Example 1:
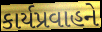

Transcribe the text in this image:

કાર્યપ્રવાહને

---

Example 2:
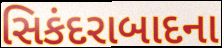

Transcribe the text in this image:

સિકંદરાબાદના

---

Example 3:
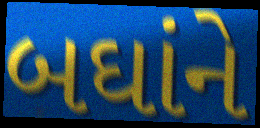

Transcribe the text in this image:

બઘાંને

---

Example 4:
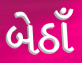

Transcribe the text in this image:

બેઠાઁ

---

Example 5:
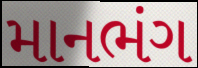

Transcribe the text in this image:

માનભંગ